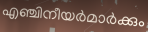
എഞ്ചിനീയർമാർക്കും